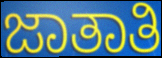
ಜಾತಾತಿ